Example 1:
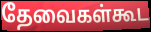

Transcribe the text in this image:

தேவைகள்கூட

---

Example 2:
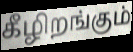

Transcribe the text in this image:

கீழிறங்கும்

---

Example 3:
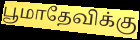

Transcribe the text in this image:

பூமாதேவிக்கு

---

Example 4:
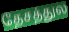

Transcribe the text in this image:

தேசத்துல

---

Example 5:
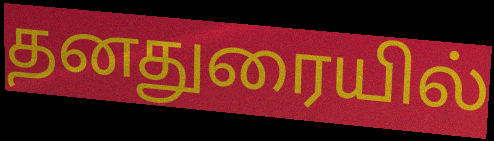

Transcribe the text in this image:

தனதுரையில்